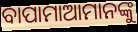
ବାପାମାଆମାନଙ୍କୁ